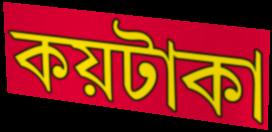
কয়টাকা